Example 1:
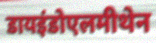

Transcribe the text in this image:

डायइंडोएलमीथेन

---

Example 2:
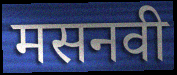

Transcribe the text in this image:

मसनवी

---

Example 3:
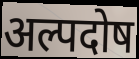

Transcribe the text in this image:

अल्पदोष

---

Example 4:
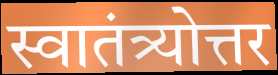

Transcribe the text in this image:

स्वातंत्र्योत्तर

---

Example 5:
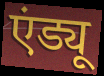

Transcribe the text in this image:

एंड्यू